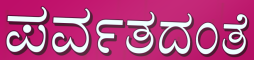
ಪರ್ವತದಂತೆ